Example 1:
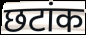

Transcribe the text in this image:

छटांक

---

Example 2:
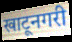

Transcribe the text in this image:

खाटूनगरी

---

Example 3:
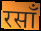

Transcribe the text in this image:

रसाँ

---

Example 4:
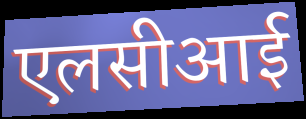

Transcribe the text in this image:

एलसीआई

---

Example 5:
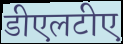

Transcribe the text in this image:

डीएलटीए